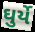
ઘુર્યે